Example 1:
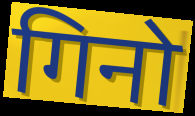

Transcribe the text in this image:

गिनो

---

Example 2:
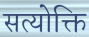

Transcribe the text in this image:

सत्योक्ति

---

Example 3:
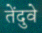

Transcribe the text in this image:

तेंदुवे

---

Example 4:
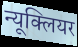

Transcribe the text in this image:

न्यूक्लियर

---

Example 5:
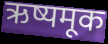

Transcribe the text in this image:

ऋष्यमूक